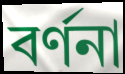
বর্ণনা